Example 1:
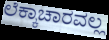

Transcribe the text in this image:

ಲೆಕ್ಕಾಚಾರವಲ್ಲ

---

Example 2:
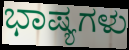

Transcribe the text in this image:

ಭಾಷ್ಯಗಳು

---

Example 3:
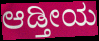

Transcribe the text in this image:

ಆಡ್ತೀಯ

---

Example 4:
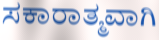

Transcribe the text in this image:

ಸಕಾರಾತ್ಮವಾಗಿ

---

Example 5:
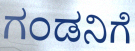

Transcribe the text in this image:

ಗಂಡನಿಗೆ